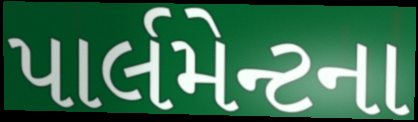
પાર્લમેન્ટના